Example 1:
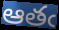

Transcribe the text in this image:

ఆతఁ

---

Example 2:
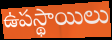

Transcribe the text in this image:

ఉపస్థాయిలు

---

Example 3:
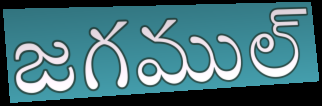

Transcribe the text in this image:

జగముల్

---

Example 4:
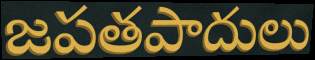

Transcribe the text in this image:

జపతపాదులు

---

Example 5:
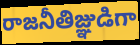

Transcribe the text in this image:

రాజనీతిజ్ఞుడిగా